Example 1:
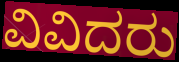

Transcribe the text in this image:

ವಿವಿದರು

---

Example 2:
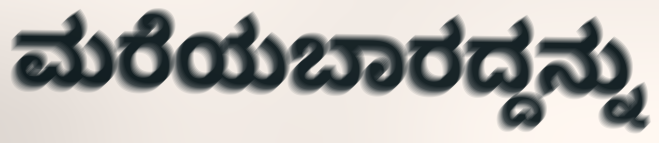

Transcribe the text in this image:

ಮರೆಯಬಾರದ್ದನ್ನು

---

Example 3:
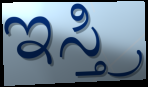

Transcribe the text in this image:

ಇಸ್ತ್ರಿ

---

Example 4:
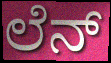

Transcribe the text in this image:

ಲೆನ್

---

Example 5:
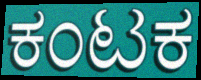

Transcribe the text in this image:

ಕಂಟಕ